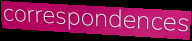
correspondences